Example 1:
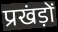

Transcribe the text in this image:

प्रखंड़ों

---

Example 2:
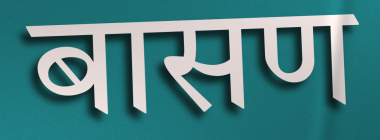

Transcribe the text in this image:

बासण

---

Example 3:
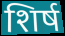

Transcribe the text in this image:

शिर्ष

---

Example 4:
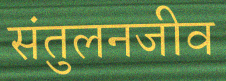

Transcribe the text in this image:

संतुलनजीव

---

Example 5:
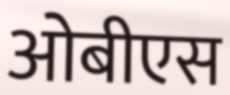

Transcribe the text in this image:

ओबीएस